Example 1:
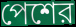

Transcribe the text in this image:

পেশের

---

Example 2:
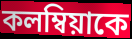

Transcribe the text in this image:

কলম্বিয়াকে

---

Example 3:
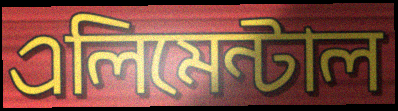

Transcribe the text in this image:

এলিমেন্টাল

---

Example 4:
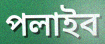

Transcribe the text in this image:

পলাইব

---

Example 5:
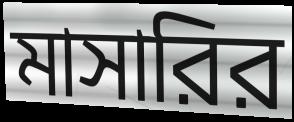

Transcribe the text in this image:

মাসারির